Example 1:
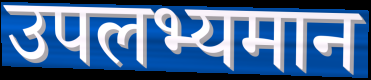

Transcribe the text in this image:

उपलभ्यमान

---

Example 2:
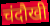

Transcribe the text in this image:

चंदौखी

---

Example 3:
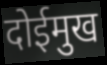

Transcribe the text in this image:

दोईमुख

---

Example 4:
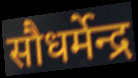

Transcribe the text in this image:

सौधर्मेन्द्र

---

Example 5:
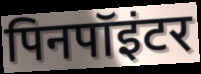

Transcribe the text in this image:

पिनपॉइंटर